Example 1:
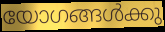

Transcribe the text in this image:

യോഗങ്ങൾക്കു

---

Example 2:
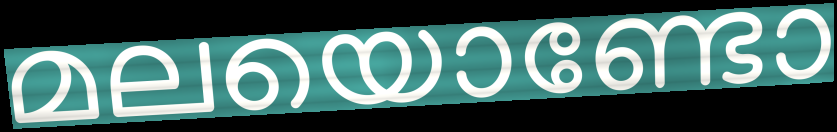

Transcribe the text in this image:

മലയൊണ്ടോ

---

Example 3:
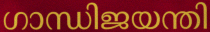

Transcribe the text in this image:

ഗാന്ധിജയന്തി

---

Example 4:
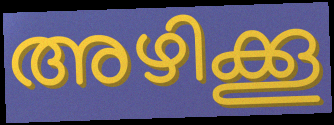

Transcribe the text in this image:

അഴിക്കൂ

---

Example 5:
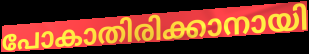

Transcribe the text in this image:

പോകാതിരിക്കാനായി